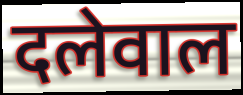
दलेवाल